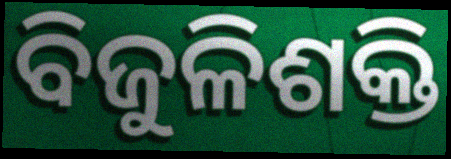
ବିଜୁଳିଶକ୍ତି